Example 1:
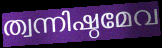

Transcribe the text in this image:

ത്വന്നിഷ്ഠമേവ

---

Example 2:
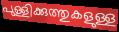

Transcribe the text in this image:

പുള്ളിക്കുത്തുകളുള്ള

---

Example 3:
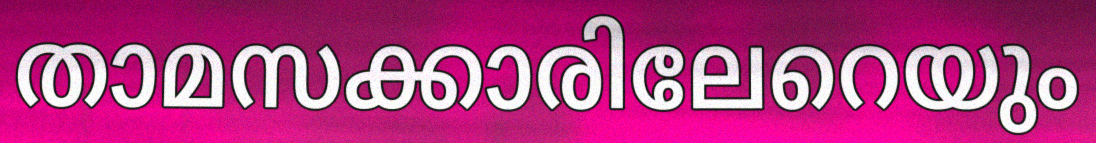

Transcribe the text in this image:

താമസക്കാരിലേറെയും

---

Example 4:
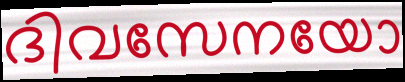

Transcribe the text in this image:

ദിവസേനയോ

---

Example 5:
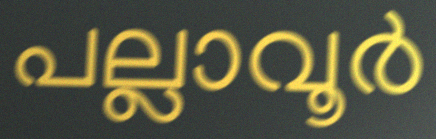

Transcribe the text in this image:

പല്ലാവൂർ